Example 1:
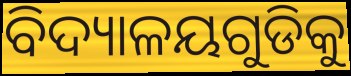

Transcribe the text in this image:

ବିଦ୍ୟାଳୟଗୁଡିକୁ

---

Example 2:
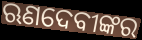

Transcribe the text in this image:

ଋଣଦେବୀଙ୍କର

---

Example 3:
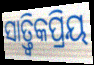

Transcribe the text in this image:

ସାତ୍ତ୍ଵିକପ୍ରିୟ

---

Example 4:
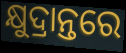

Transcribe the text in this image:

କ୍ଷୁଦ୍ରାନ୍ତରେ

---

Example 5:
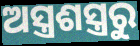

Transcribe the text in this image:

ଅସ୍ତ୍ରଶସ୍ତ୍ରରୁ